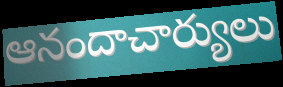
ఆనందాచార్యులు